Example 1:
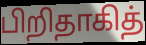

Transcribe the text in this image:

பிறிதாகித்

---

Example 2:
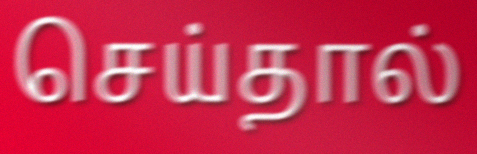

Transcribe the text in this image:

செய்தால்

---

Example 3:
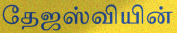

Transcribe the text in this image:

தேஜஸ்வியின்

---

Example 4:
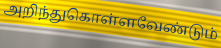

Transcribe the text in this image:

அறிந்துகொள்ளவேண்டும்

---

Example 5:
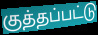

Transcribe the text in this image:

குத்தப்பட்டு